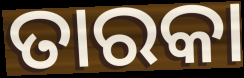
ତାରକା